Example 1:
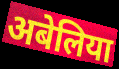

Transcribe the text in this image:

अबेलिया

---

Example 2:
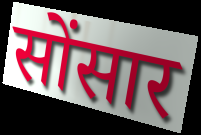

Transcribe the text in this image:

सोंसार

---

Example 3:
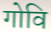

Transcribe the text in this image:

गोवि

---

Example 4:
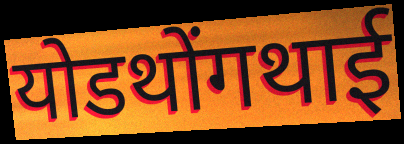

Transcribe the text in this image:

योडथोंगथाई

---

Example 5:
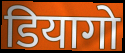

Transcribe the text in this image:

डियागो